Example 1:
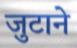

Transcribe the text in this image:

जुटाने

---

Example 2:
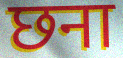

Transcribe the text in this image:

छना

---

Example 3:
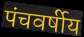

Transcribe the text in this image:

पंचवर्षीय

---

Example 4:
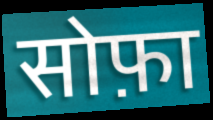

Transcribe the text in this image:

सोफ़ा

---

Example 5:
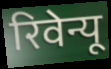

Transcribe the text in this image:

रिवेन्यू